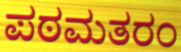
ಪಠಮತರಂ